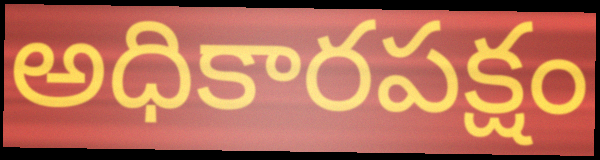
అధికారపక్షం